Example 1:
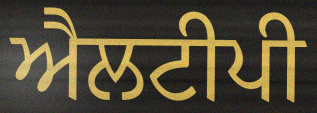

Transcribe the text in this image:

ਐਲਟੀਪੀ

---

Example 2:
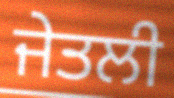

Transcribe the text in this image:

ਜੇਤਲੀ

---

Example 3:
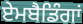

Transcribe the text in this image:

ਏਮਬੈਡਿੰਗਾਂ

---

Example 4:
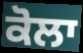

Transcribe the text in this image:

ਕੋਲਾ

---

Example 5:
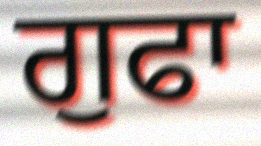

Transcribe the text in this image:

ਗੁਫਾ